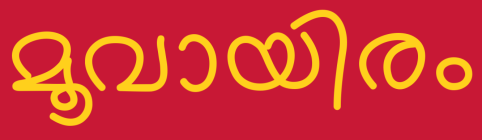
മൂവായിരം